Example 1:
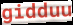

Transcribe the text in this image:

gidduu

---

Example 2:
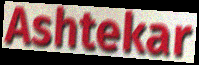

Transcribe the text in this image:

Ashtekar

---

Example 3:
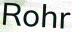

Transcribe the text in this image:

Rohr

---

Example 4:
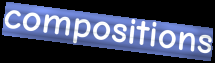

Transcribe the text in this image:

compositions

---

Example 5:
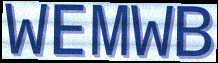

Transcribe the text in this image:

WEMWB